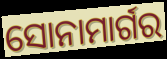
ସୋନାମାର୍ଗର